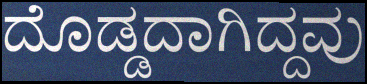
ದೊಡ್ಡದಾಗಿದ್ದವು